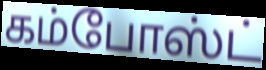
கம்போஸ்ட்